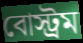
বোস্ট্রম